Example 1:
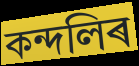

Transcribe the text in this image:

কন্দলিৰ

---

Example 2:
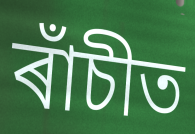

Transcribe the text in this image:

ৰাঁচীত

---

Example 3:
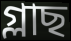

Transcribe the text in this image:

গ্লাছ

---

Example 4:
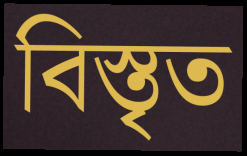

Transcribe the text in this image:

বিস্তৃত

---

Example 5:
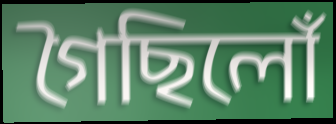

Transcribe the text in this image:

গৈছিলোঁ